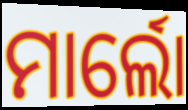
ମାର୍ଲୋ